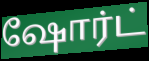
ஷோர்ட்